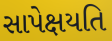
સાપેક્ષયતિ